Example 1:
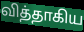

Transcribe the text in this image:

வித்தாகிய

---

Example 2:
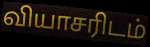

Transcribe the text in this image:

வியாசரிடம்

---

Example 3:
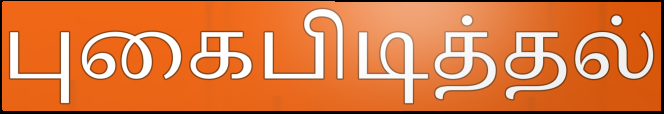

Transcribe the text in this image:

புகைபிடித்தல்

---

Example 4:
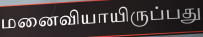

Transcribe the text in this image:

மனைவியாயிருப்பது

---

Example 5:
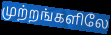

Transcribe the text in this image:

முற்றங்களிலே